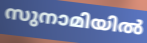
സുനാമിയിൽ